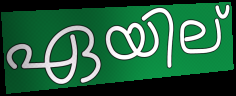
ഏയില്